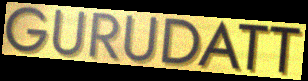
GURUDATT